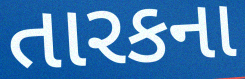
તારકના